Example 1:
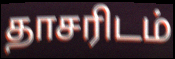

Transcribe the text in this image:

தாசரிடம்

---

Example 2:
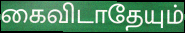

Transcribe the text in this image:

கைவிடாதேயும்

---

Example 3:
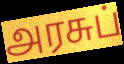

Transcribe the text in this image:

அரசுப்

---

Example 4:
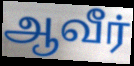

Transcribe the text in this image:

ஆவீர்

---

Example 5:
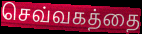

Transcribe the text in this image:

செவ்வகத்தை